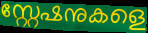
സ്റ്റേഷനുകളെ